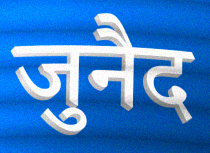
जुनैद